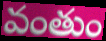
వంతుం